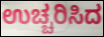
ಉಚ್ಚರಿಸಿದ